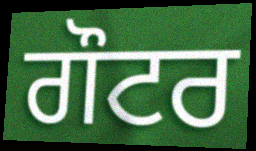
ਗੌਟਰ